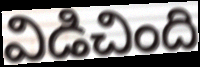
విడిచింది